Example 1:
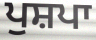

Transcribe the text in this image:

ਪੁਸ਼ਪਾ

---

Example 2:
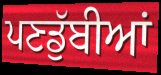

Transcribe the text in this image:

ਪਣਡੁੱਬੀਆਂ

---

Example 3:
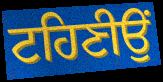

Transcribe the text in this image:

ਟਹਿਣੀਉਂ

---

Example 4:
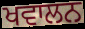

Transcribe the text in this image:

ਖਵਾਲਨ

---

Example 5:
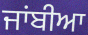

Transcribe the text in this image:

ਜਾਂਬੀਆ